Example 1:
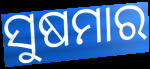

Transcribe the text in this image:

ସୁଷମାର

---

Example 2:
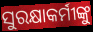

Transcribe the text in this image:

ସୁରକ୍ଷାକର୍ମୀଙ୍କୁ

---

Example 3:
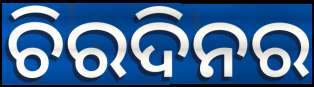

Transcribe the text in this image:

ଚିରଦିନର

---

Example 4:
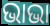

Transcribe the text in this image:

ଭାଭା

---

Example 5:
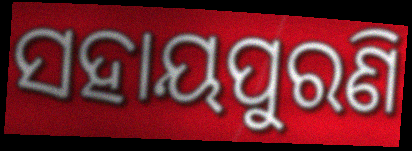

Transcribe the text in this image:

ସହାୟପୁରଣି